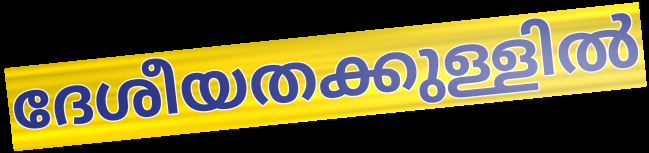
ദേശീയതക്കുള്ളിൽ